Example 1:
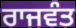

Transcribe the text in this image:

ਰਾਜਵੰਤ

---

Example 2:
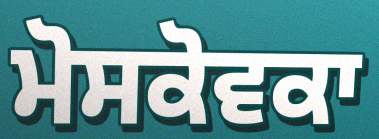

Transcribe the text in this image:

ਮੋਸਕੋਵਕਾ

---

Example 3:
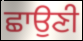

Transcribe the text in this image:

ਛਾਉਣੀ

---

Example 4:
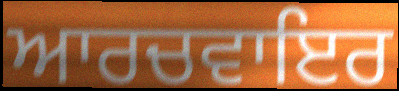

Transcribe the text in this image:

ਆਰਚਵਾਇਰ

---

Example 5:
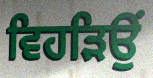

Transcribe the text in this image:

ਵਿਹੜਿਉਂ